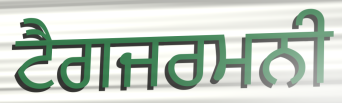
ਟੈਗਜਰਮਨੀ